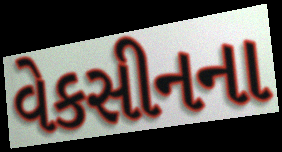
વેકસીનના